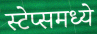
स्टेप्समध्ये